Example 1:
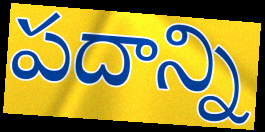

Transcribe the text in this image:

పదాన్ని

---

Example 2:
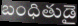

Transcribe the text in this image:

బంధితుడై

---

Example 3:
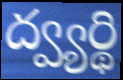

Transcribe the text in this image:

ద్వ్యర్థి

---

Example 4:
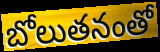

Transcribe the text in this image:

బోలుతనంతో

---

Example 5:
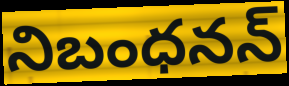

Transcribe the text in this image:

నిబంధనన్